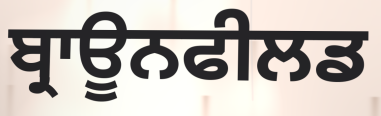
ਬ੍ਰਾਊਨਫੀਲਡ